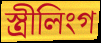
স্ত্ৰীলিংগ